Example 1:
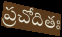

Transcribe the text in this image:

ప్రచోదితః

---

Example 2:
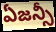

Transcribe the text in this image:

ఏజన్సీ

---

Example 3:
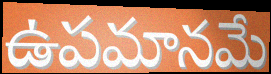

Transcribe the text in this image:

ఉపమానమే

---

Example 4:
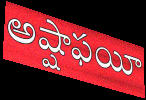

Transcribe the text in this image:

అష్షాఫయీ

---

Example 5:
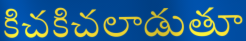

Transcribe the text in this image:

కిచకిచలాడుతూ